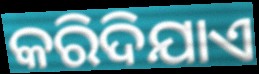
କରିଦିଯାଏ